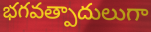
భగవత్పాదులుగా